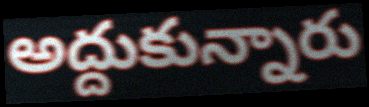
అద్దుకున్నారు